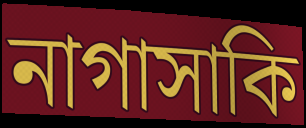
নাগাসাকি